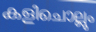
കളിചൊല്ലും